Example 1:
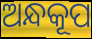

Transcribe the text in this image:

ଅନ୍ଧକୂପ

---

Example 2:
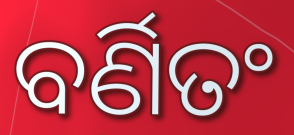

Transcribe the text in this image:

ବର୍ଣିତଂ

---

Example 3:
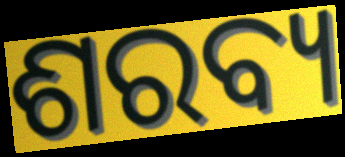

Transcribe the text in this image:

ଶରବ୍ୟ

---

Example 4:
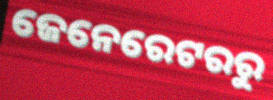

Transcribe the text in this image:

ଜେନେରେଟରରୁ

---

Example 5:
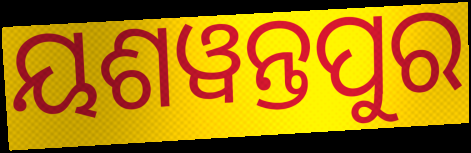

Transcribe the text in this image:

ୟଶୱନ୍ତପୁର